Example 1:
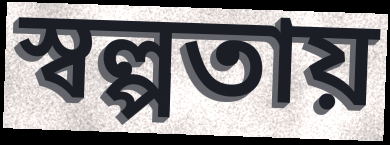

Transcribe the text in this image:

স্বল্পতায়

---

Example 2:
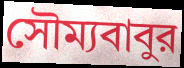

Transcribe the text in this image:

সৌম্যবাবুর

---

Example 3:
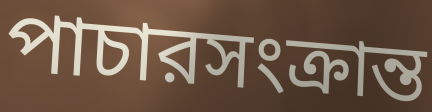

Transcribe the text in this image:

পাচারসংক্রান্ত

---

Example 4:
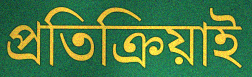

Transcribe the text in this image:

প্রতিক্রিয়াই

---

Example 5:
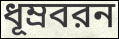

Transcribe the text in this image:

ধূম্রবরন